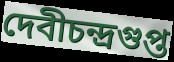
দেবীচন্দ্রগুপ্ত